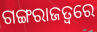
ଗଙ୍ଗରାଜତ୍ୱରେ